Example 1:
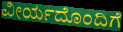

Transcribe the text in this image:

ವೀರ್ಯದೊಂದಿಗೆ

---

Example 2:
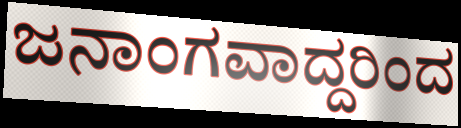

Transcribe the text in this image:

ಜನಾಂಗವಾದ್ದರಿಂದ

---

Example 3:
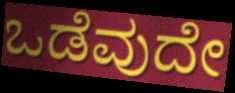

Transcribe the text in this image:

ಒಡೆವುದೇ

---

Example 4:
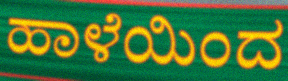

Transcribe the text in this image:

ಹಾಳೆಯಿಂದ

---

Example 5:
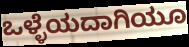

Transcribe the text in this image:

ಒಳ್ಳೆಯದಾಗಿಯೂ